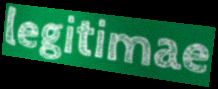
legitimae